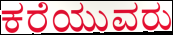
ಕರೆಯುವರು